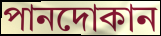
পানদোকান